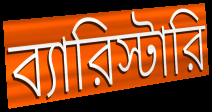
ব্যারিস্টারি